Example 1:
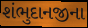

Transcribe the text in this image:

શંભુદાનજીના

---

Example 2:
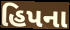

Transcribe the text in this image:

હિપના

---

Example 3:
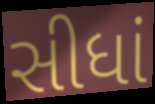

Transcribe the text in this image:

સીધાં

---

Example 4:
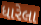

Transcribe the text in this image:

ધારેલા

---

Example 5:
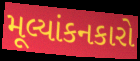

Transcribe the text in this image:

મૂલ્યાંકનકારો